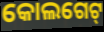
କୋଲଗେଟ୍